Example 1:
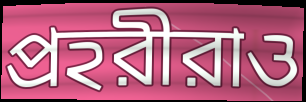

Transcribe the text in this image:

প্রহরীরাও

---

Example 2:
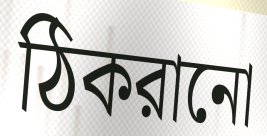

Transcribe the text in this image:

ঠিকরানো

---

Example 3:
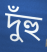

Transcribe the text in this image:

দুঁহু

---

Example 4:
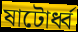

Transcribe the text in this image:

ষাটোর্ধ্ব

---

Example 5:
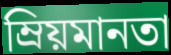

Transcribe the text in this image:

ম্রিয়মানতা